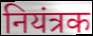
नियंत्रक